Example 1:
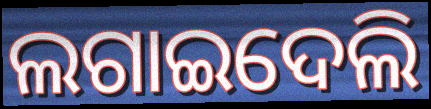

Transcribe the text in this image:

ଲଗାଇଦେଲି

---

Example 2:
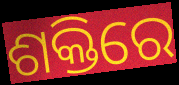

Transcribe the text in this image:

ଶକ୍ତିରେ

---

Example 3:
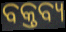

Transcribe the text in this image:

ବକ୍ତବ୍ଯ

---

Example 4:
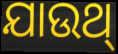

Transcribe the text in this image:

ଯାଉଥ୍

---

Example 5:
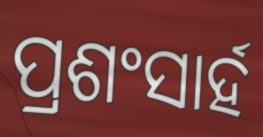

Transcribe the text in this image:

ପ୍ରଶଂସାର୍ହ